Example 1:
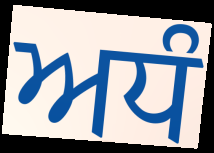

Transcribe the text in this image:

ਅਧੰ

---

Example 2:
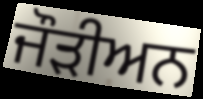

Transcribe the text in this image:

ਜੌੜੀਅਨ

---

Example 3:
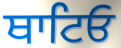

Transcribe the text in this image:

ਥਾਟਿਓ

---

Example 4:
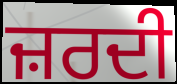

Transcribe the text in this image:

ਜ਼ਰਦੀ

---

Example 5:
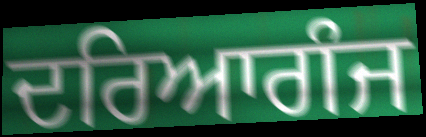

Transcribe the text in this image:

ਦਰਿਆਗੰਜ